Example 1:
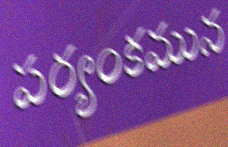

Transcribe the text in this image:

పర్యంకమున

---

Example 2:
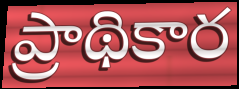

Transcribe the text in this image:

ప్రాథికార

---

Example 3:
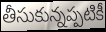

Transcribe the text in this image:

తీసుకున్నప్పటికీ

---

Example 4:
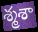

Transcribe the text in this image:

శ్మశా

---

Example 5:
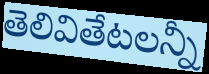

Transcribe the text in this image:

తెలివితేటలన్నీ